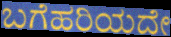
ಬಗೆಹರಿಯದೇ